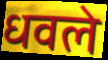
धवले